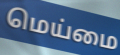
மெய்மை